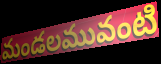
మండలమువంటి